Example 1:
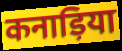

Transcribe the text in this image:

कनाड़िया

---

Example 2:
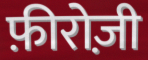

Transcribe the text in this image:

फ़ीरोज़ी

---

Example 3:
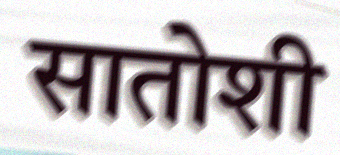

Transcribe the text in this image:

सातोशी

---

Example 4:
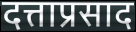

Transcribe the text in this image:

दत्ताप्रसाद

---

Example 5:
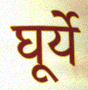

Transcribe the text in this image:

घूर्ये